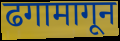
ढगामागून